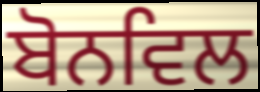
ਬੋਨਵਿਲ